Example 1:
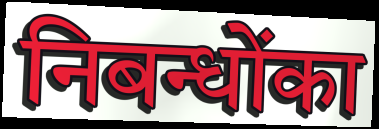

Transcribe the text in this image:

निबन्धोंका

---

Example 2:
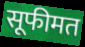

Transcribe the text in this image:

सूफीमत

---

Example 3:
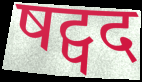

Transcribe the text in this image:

षट्पद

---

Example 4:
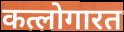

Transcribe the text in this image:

कत्लोगारत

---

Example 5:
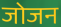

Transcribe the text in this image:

जोजन